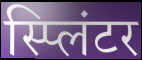
स्प्लिंटर